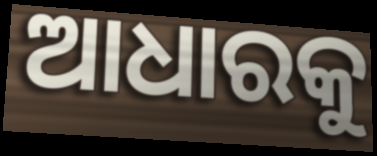
ଆଧାରକୁ